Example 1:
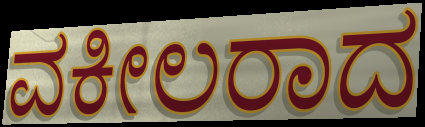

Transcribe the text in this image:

ವಕೀಲರಾದ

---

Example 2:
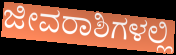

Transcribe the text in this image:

ಜೀವರಾಶಿಗಳಲ್ಲಿ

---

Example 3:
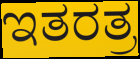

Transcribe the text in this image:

ಇತರತ್ರ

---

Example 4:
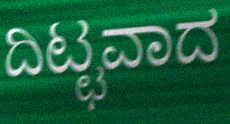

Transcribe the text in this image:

ದಿಟ್ಟವಾದ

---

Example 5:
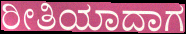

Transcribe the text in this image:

ರೀತಿಯಾದಾಗ